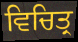
ਵਿਚਿਤ੍ਰ